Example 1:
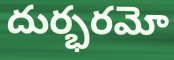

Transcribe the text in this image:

దుర్భరమో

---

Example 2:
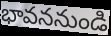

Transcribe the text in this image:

భావననుండి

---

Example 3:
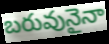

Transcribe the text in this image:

బరువునైనా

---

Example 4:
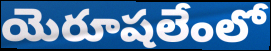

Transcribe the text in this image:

యెరూషలేంలో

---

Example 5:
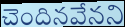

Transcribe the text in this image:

చెందినవేనని